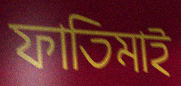
ফাতিমাই